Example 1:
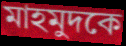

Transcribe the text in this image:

মাহমুদকে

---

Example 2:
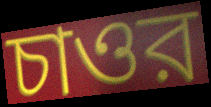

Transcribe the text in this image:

চাওর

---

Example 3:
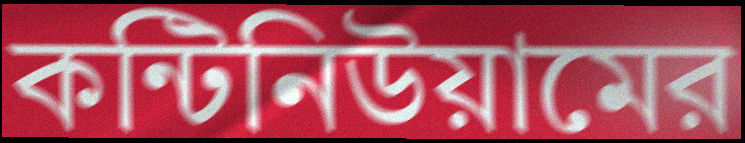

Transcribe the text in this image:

কন্টিনিউয়ামের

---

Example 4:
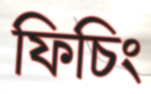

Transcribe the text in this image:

ফিচিং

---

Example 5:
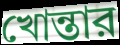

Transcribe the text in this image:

খোন্তার